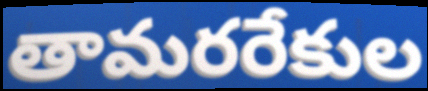
తామరరేకుల